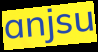
anjsu